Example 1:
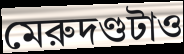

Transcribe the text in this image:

মেরুদণ্ডটাও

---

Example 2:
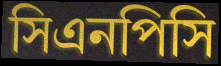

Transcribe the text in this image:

সিএনপিসি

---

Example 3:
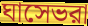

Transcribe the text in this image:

ঘাসেভরা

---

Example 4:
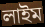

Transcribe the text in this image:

লাইম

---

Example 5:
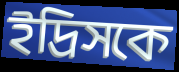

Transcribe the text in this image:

ইদ্রিসকে